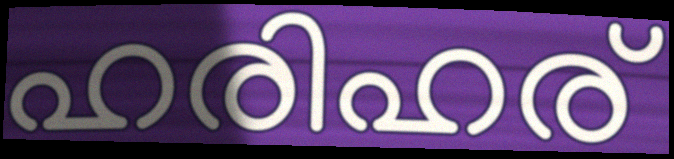
ഹരിഹര്